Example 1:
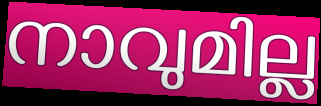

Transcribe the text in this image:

നാവുമില്ല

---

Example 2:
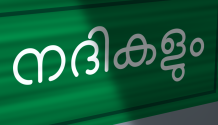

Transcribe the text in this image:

നദികളും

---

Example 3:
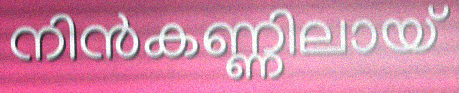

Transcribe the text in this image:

നിൻകണ്ണിലായ്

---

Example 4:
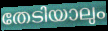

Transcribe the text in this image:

തേടിയാലും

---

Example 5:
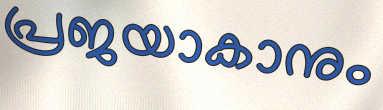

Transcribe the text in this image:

പ്രജയാകാനും